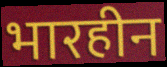
भारहीन